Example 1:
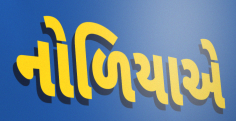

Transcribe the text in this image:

નોળિયાએ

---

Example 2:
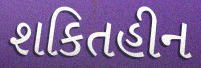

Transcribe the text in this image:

શકિતહીન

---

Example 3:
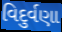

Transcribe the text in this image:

વિદુર્વણા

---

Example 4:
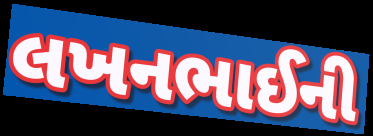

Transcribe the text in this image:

લખનભાઈની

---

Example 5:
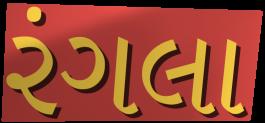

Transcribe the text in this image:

રંગલા